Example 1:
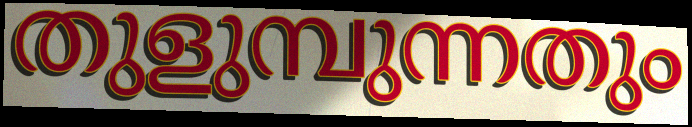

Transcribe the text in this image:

തുളുമ്പുന്നതും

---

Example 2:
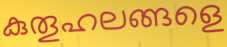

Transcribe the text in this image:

കുതൂഹലങ്ങളെ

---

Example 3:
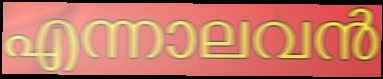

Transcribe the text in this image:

എന്നാലവൻ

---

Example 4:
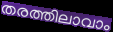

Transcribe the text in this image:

തരത്തിലാവാം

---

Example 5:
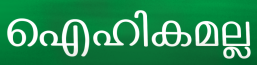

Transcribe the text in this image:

ഐഹികമല്ല